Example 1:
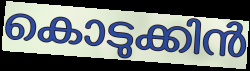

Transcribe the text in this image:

കൊടുക്കിൻ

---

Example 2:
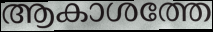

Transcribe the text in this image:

ആകാശത്തേ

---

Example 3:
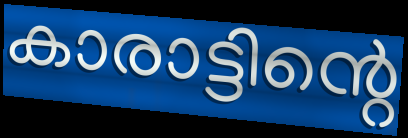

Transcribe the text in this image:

കാരാട്ടിന്റെ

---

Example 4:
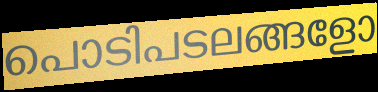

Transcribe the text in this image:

പൊടിപടലങ്ങളോ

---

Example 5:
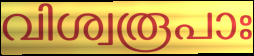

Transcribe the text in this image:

വിശ്വരൂപാഃ